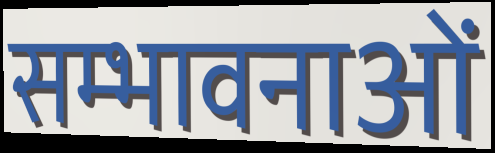
सम्भावनाओं